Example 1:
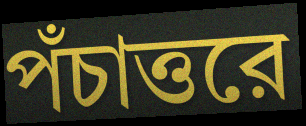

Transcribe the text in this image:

পঁচাত্তরে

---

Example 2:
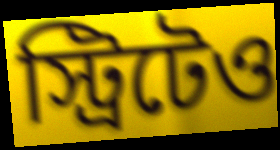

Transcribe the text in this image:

স্ট্রিটেও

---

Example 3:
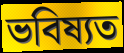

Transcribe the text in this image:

ভবিষ্যত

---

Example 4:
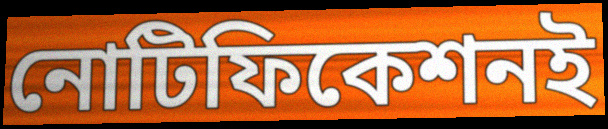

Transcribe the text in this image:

নোটিফিকেশনই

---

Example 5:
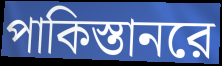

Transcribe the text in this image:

পাকিস্তানরে